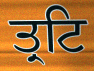
ਤ੍ਰਟਿ